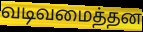
வடிவமைத்தன